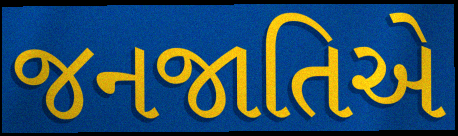
જનજાતિએ